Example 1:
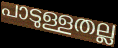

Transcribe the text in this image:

പാടുള്ളതല്ല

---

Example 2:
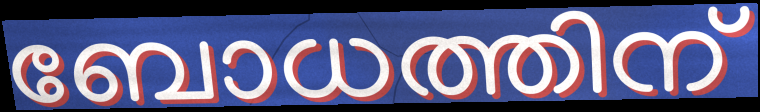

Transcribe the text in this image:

ബോധത്തിന്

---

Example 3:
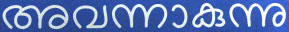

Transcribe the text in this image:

അവന്നാകുന്നു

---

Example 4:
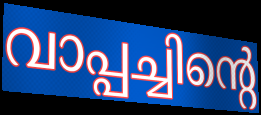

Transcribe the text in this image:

വാപ്പച്ചിന്റെ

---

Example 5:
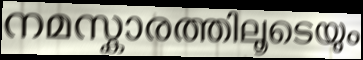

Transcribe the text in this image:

നമസ്കാരത്തിലൂടെയും